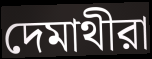
দেমাথীরা